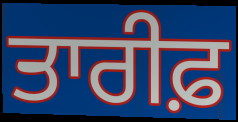
ਤਾਰੀਫ਼